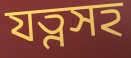
যত্নসহ